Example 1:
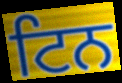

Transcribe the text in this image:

ਟਿਨ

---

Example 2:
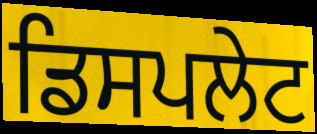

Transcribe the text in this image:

ਡਿਸਪਲੇਟ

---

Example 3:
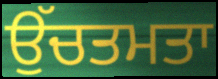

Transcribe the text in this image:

ਉੱਚਤਮਤਾ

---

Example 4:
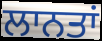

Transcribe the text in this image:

ਲਾਨਤਾਂ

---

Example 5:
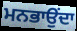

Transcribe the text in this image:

ਮਨਭਾਉਂਦਾ